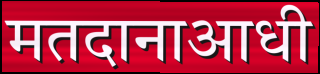
मतदानाआधी